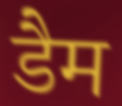
डैम